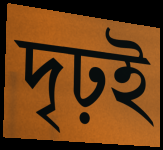
দৃঢ়ই